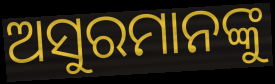
ଅସୁରମାନଙ୍କୁ